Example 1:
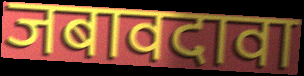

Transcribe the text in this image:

जबावदावा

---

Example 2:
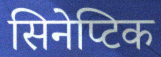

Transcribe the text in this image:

सिनेप्टिक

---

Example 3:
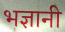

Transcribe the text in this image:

भज्ञानी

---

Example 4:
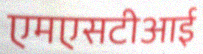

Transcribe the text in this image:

एमएसटीआई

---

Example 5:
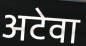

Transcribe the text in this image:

अटेवा